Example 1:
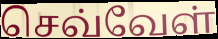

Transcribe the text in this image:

செவ்வேள்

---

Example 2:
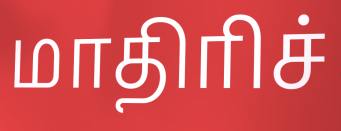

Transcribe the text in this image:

மாதிரிச்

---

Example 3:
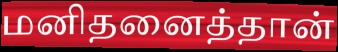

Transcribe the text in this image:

மனிதனைத்தான்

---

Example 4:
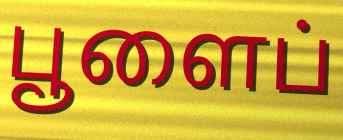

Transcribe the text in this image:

பூளைப்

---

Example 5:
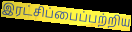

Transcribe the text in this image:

இரட்சிப்பைப்பற்றிய